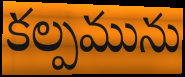
కల్పమును